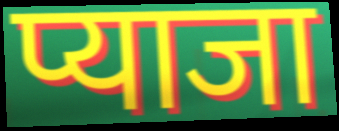
प्याजा